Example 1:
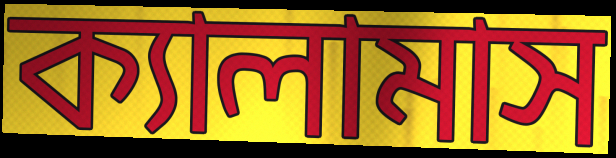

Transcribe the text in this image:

ক্যালামাস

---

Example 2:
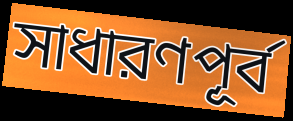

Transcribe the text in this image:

সাধারণপূর্ব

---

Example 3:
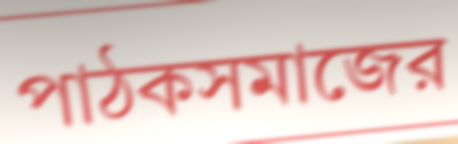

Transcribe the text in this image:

পাঠকসমাজের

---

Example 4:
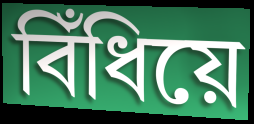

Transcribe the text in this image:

বিঁধিয়ে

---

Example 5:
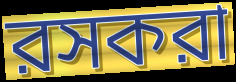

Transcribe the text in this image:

রসকরা